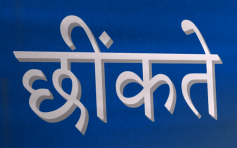
छींकते